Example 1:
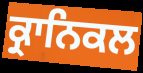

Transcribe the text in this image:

ਕ੍ਰਾਨਿਕਲ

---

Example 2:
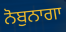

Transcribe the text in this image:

ਨੋਬੁਨਾਗਾ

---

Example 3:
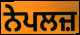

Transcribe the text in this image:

ਨੇਪਲਜ਼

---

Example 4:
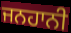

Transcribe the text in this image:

ਜਨਹਾਨੀ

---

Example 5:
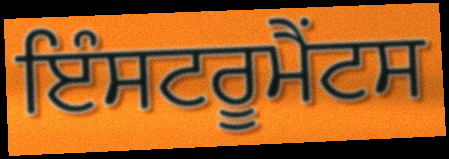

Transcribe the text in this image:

ਇੰਸਟਰੂਮੈਂਟਸ